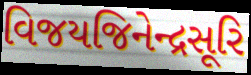
વિજયજિનેન્દ્રસૂરિ